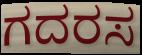
ಗದರಸ